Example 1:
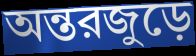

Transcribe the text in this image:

অন্তরজুড়ে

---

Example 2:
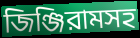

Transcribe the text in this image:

জিঞ্জিরামসহ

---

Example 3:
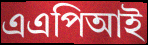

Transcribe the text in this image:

এএপিআই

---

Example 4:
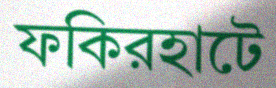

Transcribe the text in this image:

ফকিরহাটে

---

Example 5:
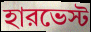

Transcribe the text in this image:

হারভেস্ট